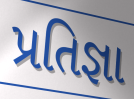
પ્રતિજ્ઞા